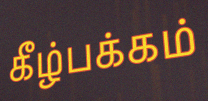
கீழ்பக்கம்